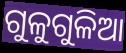
ଗୁଳୁଗୁଳିଆ